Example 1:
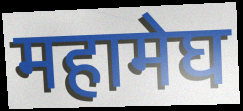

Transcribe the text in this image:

महामेघ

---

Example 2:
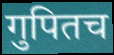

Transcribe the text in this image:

गुपितच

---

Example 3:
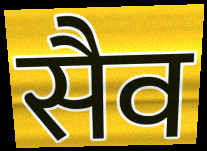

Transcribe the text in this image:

सैव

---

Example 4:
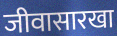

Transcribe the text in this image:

जीवासारखा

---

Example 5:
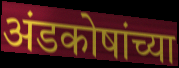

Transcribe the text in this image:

अंडकोषांच्या